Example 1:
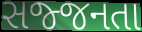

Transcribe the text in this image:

સજ્જનતા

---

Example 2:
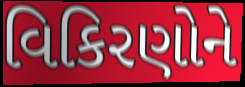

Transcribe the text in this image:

વિકિરણોને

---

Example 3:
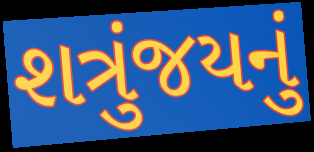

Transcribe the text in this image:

શત્રુંજયનું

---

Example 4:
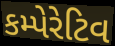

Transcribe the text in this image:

કમ્પેરેટિવ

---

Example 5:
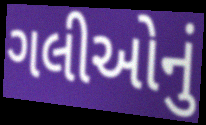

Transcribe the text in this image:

ગલીઓનું